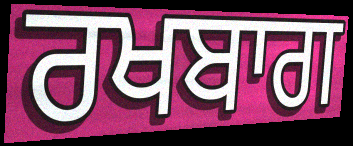
ਰਖਬਾਗ